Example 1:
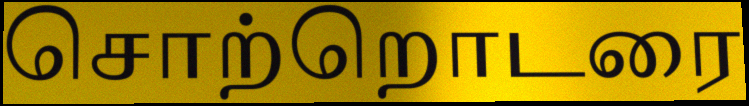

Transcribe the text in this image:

சொற்றொடரை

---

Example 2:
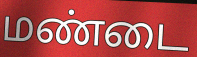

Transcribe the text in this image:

மண்டை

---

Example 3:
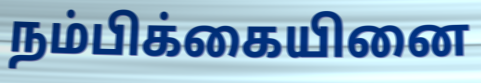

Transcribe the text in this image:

நம்பிக்கையினை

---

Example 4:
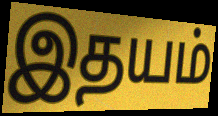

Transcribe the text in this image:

இதயம்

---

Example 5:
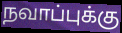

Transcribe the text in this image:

நவாப்புக்கு